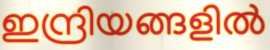
ഇന്ദ്രിയങ്ങളിൽ